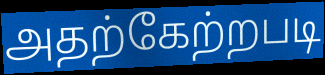
அதற்கேற்றபடி